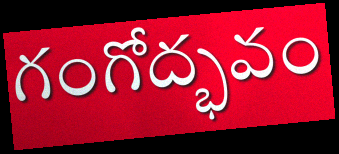
గంగోద్భవం